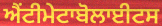
ਐਂਟੀਮੇਟਾਬੋਲਾਈਟਸ